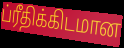
ப்ரீதிக்கிடமான